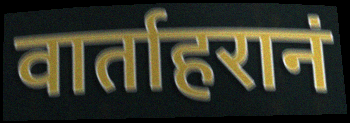
वार्ताहरानं